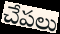
చేపలు